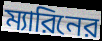
ম্যারিনের